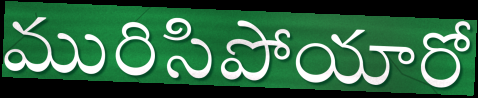
మురిసిపోయారో